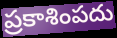
ప్రకాశింపదు